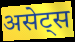
असेट्स